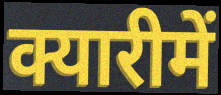
क्यारीमें